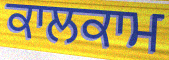
ਕਾਲਕਾਮ